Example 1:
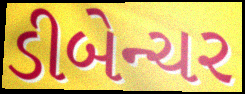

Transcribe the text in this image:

ડીબેન્ચર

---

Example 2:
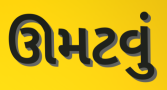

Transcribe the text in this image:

ઊમટવું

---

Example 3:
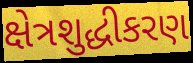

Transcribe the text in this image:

ક્ષેત્રશુદ્ધીકરણ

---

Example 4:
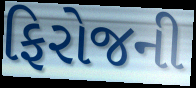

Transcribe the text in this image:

ફિરોજની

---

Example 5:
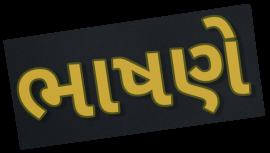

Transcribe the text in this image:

ભાષણે